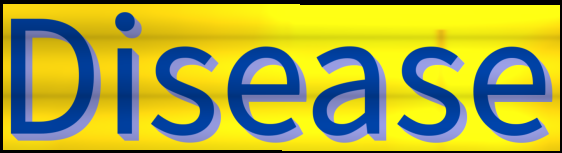
Disease